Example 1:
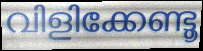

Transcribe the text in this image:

വിളിക്കേണ്ടൂ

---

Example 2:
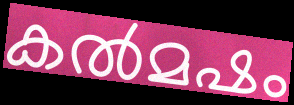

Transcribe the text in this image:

കൽമഷം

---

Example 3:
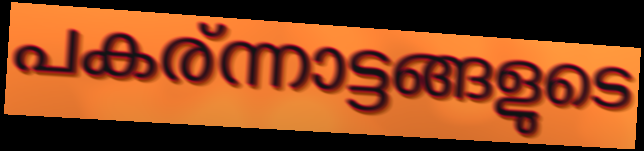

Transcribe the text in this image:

പകര്ന്നാട്ടങ്ങളുടെ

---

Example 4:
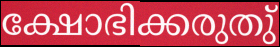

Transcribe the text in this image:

ക്ഷോഭിക്കരുതു്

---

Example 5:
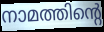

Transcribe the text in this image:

നാമത്തിന്റെ